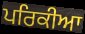
ਪਰਿਕੀਆ